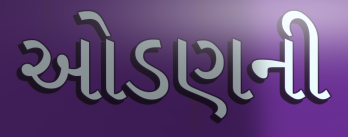
ઓડણની